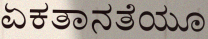
ಏಕತಾನತೆಯೂ